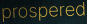
prospered